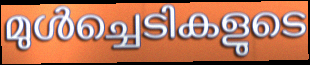
മുൾച്ചെടികളുടെ